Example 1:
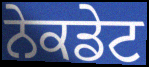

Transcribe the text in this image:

ਨੇਕਡੇਟ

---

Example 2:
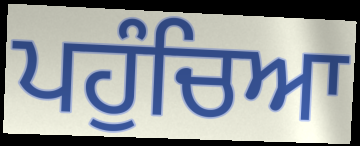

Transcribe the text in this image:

ਪਹੁੰਚਿਆ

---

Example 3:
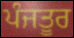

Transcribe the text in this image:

ਪੰਜਤੂਰ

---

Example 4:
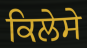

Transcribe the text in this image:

ਕਿਲੇਸੇ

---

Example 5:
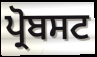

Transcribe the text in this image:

ਪ੍ਰੋਬਸਟ